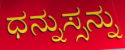
ಧನ್ನುಸ್ಸನ್ನು